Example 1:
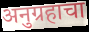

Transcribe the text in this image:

अनुग्रहाचा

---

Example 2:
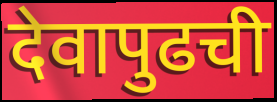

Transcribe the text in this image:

देवापुढची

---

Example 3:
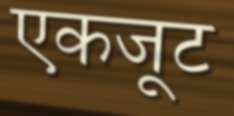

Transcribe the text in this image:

एकजूट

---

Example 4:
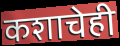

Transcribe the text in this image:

कशाचेही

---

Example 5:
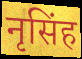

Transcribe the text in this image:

नृसिंह